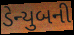
ડેન્યુબની